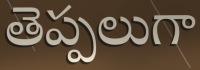
తెప్పలుగా